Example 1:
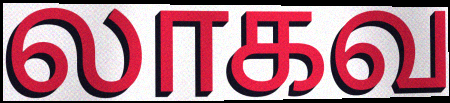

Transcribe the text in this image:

லாகவ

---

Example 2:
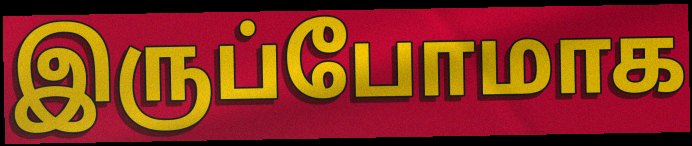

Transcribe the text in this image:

இருப்போமாக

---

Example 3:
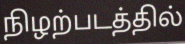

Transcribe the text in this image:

நிழற்படத்தில்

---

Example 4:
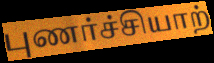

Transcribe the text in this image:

புணர்ச்சியாற்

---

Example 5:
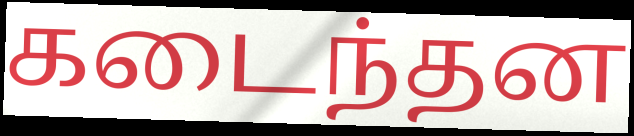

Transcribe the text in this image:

கடைந்தன